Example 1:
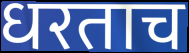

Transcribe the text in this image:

धरताच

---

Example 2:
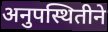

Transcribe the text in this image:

अनुपस्थितीने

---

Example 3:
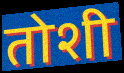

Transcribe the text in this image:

तोशी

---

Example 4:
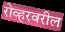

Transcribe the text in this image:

रोव्हरवरील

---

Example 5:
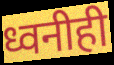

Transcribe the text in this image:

ध्वनीही